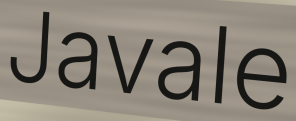
Javale